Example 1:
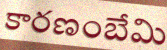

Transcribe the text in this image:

కారణంబేమి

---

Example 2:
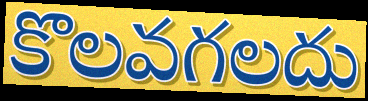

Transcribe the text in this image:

కొలవగలదు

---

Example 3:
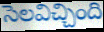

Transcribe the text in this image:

సెలవిచ్చింది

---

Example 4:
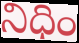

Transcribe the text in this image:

నిధిం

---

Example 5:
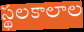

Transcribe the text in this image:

స్థలకాలాల